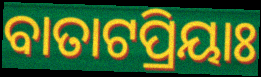
ବାତାଟପ୍ରିୟାଃ